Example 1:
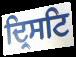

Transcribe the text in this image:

ਦ੍ਰਿਸਟਿ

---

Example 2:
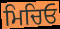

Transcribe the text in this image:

ਮਿਚਿਓ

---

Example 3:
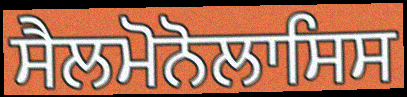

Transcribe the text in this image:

ਸੈਲਮੋਨੋਲਾਸਿਸ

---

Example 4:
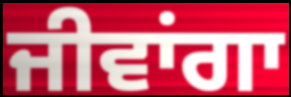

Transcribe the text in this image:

ਜੀਵਾਂਗਾ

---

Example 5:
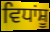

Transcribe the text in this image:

ਵਿਧਾਂਸ਼ੂ